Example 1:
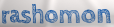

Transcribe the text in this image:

rashomon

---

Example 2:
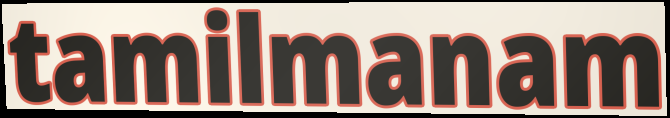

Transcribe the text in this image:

tamilmanam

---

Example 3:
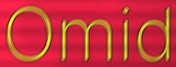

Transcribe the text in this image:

Omid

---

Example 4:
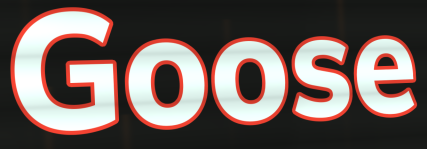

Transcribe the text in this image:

Goose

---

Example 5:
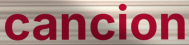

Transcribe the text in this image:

cancion